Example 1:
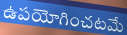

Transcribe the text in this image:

ఉపయోగించటమే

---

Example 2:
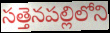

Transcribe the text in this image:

సత్తెనపల్లిలోని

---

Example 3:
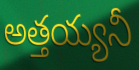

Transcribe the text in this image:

అత్తయ్యనీ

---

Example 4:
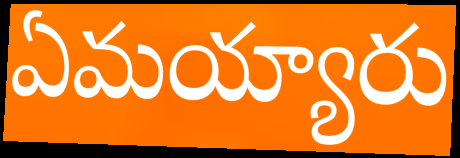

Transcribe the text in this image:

ఏమయ్యారు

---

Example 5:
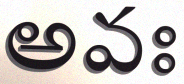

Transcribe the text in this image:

అవః